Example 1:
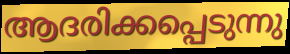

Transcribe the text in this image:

ആദരിക്കപ്പെടുന്നു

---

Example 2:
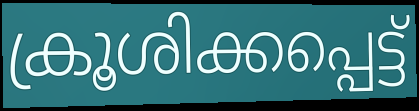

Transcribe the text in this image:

ക്രൂശിക്കപ്പെട്ട്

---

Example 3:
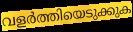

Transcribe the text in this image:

വളർത്തിയെടുക്കുക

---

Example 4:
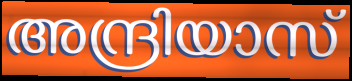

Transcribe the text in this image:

അന്ദ്രിയാസ്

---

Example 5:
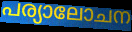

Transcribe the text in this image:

പര്യാലോചന